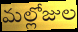
మల్లోజుల